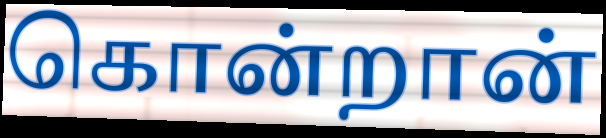
கொன்றான்